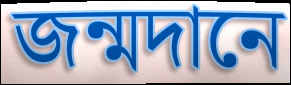
জন্মদানে